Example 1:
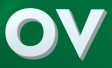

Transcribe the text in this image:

OV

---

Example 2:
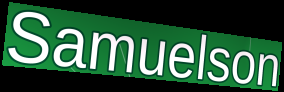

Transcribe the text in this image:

Samuelson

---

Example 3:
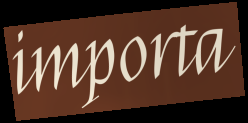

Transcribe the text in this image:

importa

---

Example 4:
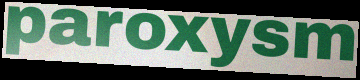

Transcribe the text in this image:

paroxysm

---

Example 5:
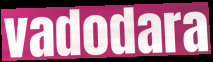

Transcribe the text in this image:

vadodara